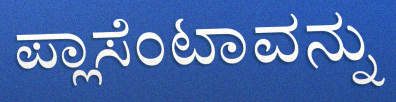
ಪ್ಲಾಸೆಂಟಾವನ್ನು